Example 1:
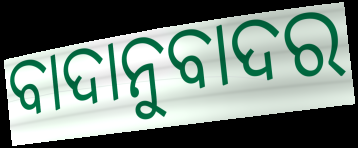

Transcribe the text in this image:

ବାଦାନୁବାଦର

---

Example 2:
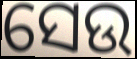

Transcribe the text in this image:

ସେଉ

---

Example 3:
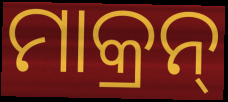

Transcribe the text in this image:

ମାକ୍ରନ୍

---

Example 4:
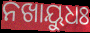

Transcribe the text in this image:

ନଖାୟୁଧଃ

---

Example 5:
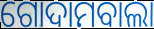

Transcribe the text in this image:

ଗୋଦାମବାଲା